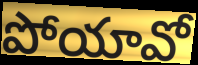
పోయావో